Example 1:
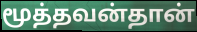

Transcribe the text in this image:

மூத்தவன்தான்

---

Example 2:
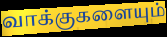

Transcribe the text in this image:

வாக்குகளையும்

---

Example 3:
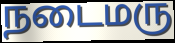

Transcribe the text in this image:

நடைமரு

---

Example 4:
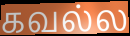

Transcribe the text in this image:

கவல்ல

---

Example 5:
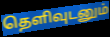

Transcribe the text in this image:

தெளிவுடனும்